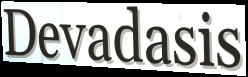
Devadasis